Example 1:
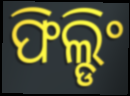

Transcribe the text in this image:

ଫିଲ୍ଡିଂ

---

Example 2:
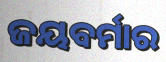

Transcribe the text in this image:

ଜୟବର୍ମାର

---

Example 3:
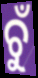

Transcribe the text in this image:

ଚୁଁ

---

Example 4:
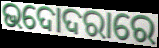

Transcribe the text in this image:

ଭଦୋଦରାରେ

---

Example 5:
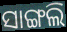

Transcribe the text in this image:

ସାଙ୍ଗଲି